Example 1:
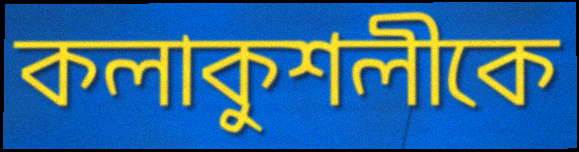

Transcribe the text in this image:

কলাকুশলীকে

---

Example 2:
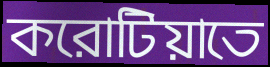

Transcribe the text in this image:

করোটিয়াতে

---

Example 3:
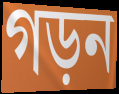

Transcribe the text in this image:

গড়ন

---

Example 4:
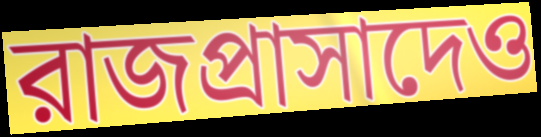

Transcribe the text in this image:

রাজপ্রাসাদেও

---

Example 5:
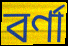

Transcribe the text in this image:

বর্ণা